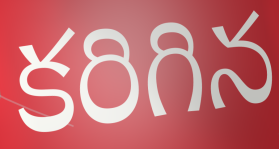
కరిగిన